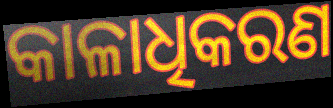
କାଳାଧିକରଣ